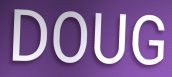
DOUG